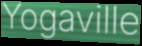
Yogaville